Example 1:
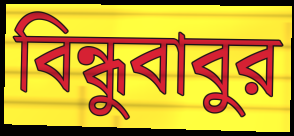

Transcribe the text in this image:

বিন্ধুবাবুর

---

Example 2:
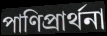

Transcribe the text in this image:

পাণিপ্রার্থনা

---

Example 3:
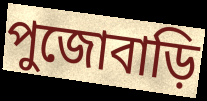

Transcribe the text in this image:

পুজোবাড়ি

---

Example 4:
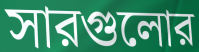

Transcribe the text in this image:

সারগুলোর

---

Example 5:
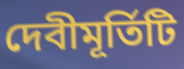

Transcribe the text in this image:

দেবীমূর্তিটি